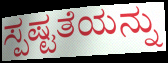
ಸ್ಪಷ್ಟತೆಯನ್ನು